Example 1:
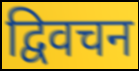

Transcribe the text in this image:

द्विवचन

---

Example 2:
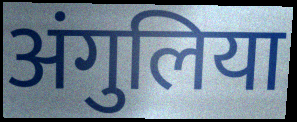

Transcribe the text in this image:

अंगुलिया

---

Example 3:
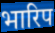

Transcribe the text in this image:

भारिप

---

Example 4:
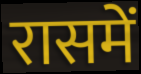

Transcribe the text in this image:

रासमें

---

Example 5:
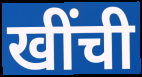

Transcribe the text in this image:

खींची